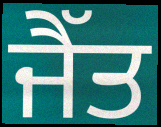
ਜੈੱਤ